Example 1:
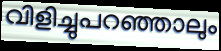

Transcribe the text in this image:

വിളിച്ചുപറഞ്ഞാലും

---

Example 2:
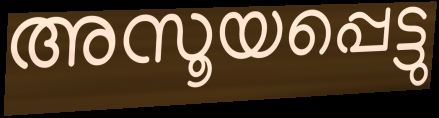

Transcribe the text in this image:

അസൂയപ്പെട്ടു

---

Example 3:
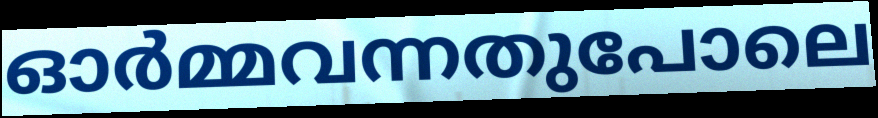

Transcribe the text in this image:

ഓർമ്മവന്നതുപോലെ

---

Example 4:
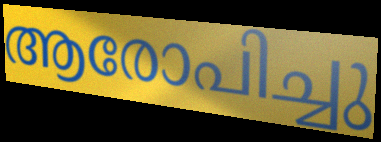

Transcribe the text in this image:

ആരോപിച്ചു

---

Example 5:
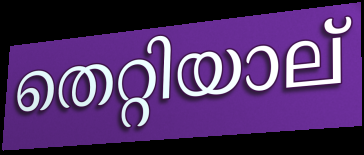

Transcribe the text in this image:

തെറ്റിയാല്